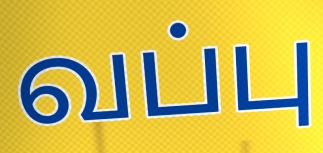
வப்பு